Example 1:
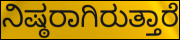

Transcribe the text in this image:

ನಿಷ್ಠರಾಗಿರುತ್ತಾರೆ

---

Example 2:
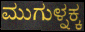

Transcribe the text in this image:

ಮುಗುಳ್ನಕ್ಕ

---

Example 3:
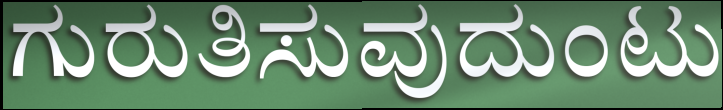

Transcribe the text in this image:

ಗುರುತಿಸುವುದುಂಟು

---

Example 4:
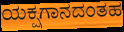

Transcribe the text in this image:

ಯಕ್ಷಗಾನದಂತಹ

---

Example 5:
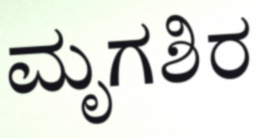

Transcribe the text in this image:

ಮೃಗಶಿರ